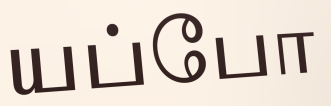
யப்போ